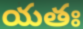
యతః